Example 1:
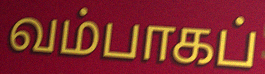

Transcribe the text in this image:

வம்பாகப்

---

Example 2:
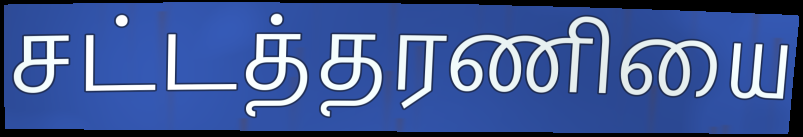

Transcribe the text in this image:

சட்டத்தரணியை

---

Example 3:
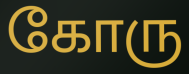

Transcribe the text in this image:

கோரு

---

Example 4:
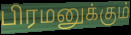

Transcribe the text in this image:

பிரமனுக்கும்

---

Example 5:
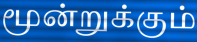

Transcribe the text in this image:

மூன்றுக்கும்